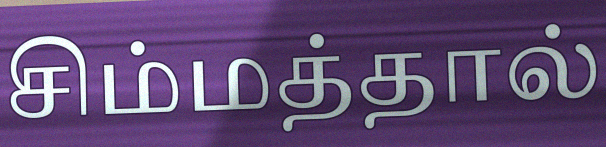
சிம்மத்தால்